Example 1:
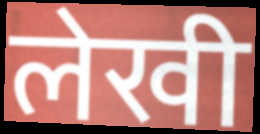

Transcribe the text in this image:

लेखी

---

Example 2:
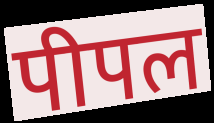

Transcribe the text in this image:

पीपल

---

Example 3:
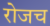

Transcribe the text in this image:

रोजच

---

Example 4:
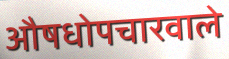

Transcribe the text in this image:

औषधोपचारवाले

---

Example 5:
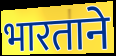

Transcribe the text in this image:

भारताने